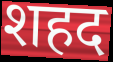
शहद